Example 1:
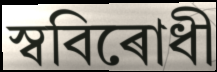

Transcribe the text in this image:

স্ববিৰোধী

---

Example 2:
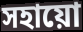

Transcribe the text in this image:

সহায়ো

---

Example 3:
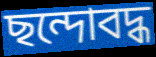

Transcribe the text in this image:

ছন্দোবদ্ধ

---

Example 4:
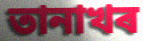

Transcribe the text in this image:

তানাখৰ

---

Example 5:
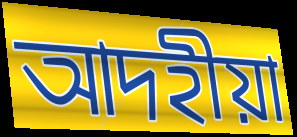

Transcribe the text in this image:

আদহীয়া